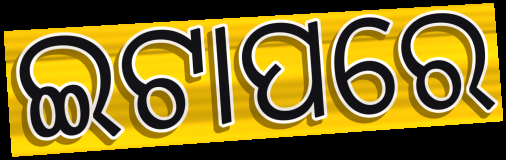
ଇଟାପରେ